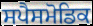
ਸਪੈਸਮੋਡਿਕ